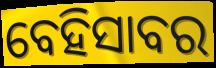
ବେହିସାବର